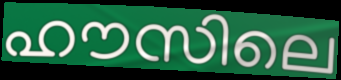
ഹൗസിലെ